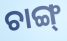
ଚାଙ୍ଗ୍